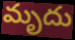
మృదు